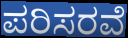
ಪರಿಸರವೆ